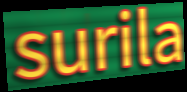
surila